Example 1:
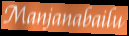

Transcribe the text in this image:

Manjanabailu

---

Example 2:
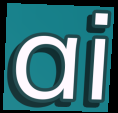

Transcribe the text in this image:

ai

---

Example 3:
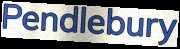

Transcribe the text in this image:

Pendlebury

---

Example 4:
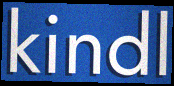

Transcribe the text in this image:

kindl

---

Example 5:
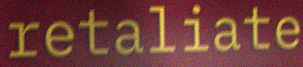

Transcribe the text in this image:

retaliate